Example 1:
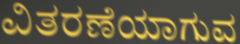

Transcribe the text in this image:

ವಿತರಣೆಯಾಗುವ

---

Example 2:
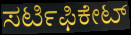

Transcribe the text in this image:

ಸರ್ಟಿಫಿಕೇಟ್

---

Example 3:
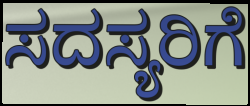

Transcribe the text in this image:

ಸದಸ್ಯರಿಗೆ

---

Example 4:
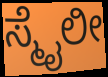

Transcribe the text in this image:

ಸ್ಮೈಲೀ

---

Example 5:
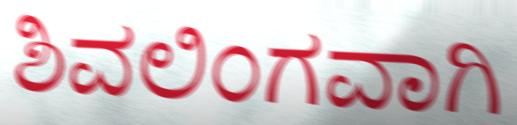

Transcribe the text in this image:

ಶಿವಲಿಂಗವಾಗಿ